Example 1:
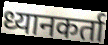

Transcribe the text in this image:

ध्यानकर्ता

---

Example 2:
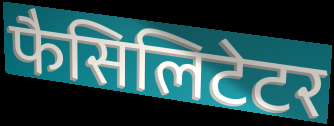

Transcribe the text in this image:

फैसिलिटेटर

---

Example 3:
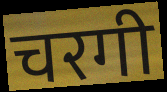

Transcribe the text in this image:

चरगी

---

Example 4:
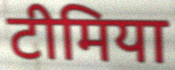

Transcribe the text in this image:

टीमिया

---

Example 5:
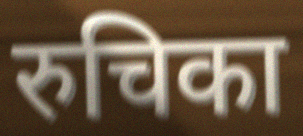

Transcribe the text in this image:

रुचिका